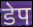
डेप